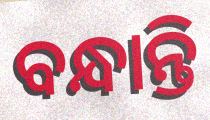
ବନ୍ଧାନ୍ତି